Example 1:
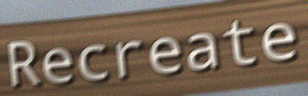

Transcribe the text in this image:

Recreate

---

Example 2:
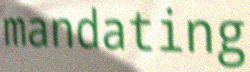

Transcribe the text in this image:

mandating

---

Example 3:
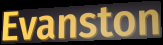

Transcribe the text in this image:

Evanston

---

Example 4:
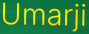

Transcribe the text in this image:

Umarji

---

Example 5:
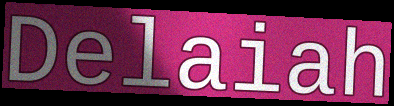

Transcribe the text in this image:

Delaiah